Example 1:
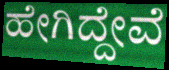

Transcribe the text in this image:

ಹೇಗಿದ್ದೇವೆ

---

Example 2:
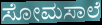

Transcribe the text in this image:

ಸೋಮಸಾಲೆ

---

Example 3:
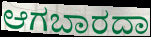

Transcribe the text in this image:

ಆಗಬಾರದಾ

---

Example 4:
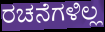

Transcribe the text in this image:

ರಚನೆಗಳಿಲ್ಲ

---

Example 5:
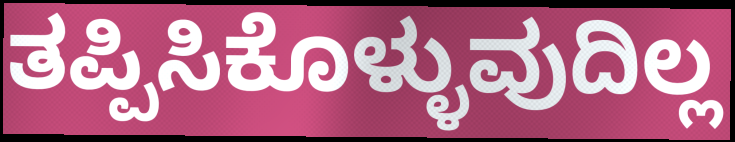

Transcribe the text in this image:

ತಪ್ಪಿಸಿಕೊಳ್ಳುವುದಿಲ್ಲ